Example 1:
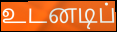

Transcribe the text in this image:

உடனடிப்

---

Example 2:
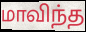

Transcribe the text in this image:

மாவிந்த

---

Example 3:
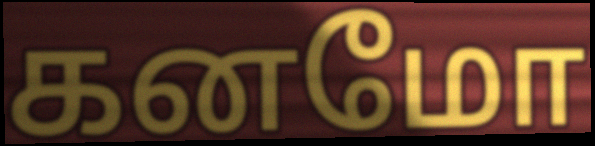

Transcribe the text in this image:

கனமோ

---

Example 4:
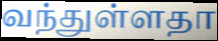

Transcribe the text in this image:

வந்துள்ளதா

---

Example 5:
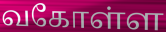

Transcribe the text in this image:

வகோள்ள